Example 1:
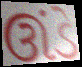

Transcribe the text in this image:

ઊંડે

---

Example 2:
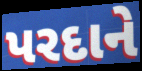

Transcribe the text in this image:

પરદાને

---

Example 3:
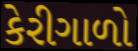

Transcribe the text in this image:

કેરીગાળો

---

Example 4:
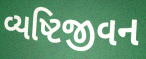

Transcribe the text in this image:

વ્યષ્ટિજીવન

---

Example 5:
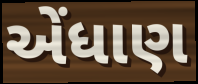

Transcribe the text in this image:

એંધાણ